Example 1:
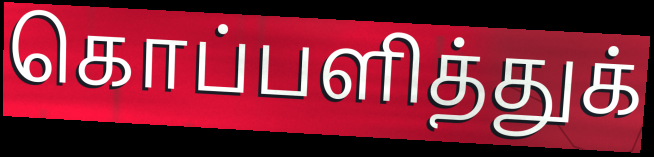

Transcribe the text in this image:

கொப்பளித்துக்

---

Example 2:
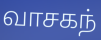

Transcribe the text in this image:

வாசகந்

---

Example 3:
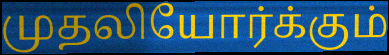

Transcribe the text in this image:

முதலியோர்க்கும்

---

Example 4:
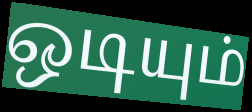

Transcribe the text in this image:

ஒடியும்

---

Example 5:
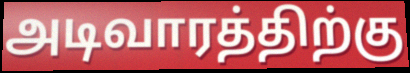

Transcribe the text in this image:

அடிவாரத்திற்கு